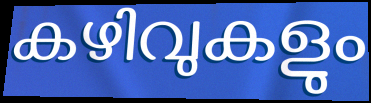
കഴിവുകളും